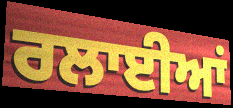
ਰਲਾਈਆਂ